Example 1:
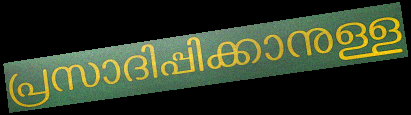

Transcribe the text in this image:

പ്രസാദിപ്പിക്കാനുള്ള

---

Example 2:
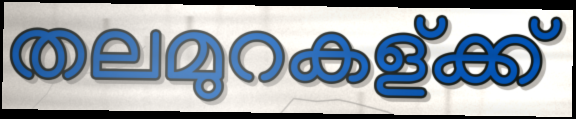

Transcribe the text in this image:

തലമുറകള്ക്ക്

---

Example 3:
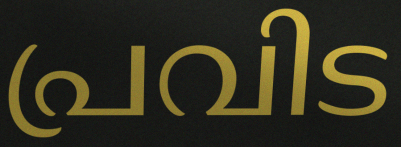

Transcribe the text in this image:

പ്രവിട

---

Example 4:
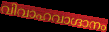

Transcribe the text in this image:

വിവാഹവാഗ്ദാനം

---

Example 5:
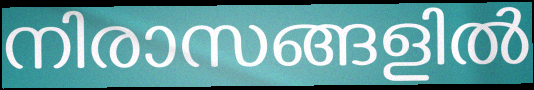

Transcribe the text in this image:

നിരാസങ്ങളിൽ